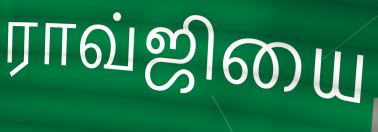
ராவ்ஜியை